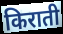
किराती